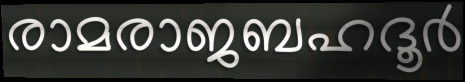
രാമരാജബഹദൂർ